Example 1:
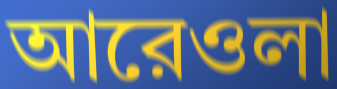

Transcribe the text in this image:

আরেওলা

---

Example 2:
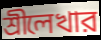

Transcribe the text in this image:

শ্রীলেখার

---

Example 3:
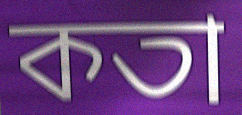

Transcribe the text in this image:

কতা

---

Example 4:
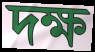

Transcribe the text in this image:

দক্ষ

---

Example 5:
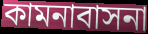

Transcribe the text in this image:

কামনাবাসনা